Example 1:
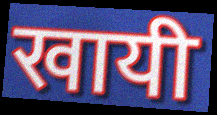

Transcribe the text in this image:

खायी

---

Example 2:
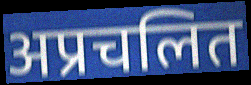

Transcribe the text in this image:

अप्रचलित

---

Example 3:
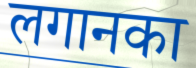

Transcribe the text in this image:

लगानका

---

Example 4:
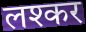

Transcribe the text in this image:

लश्कर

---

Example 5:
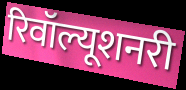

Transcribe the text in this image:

रिवॉल्यूशनरी